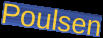
Poulsen